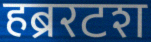
हब्ररटश